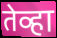
तेव्हा